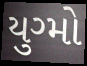
યુગ્મો